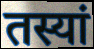
तस्यां